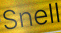
Snell